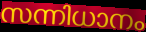
സന്നിധാനം